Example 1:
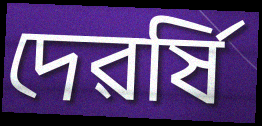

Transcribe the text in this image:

দেৱৰ্ষি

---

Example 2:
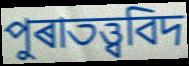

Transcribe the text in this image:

পুৰাতত্ত্ববিদ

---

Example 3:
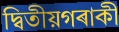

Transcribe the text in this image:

দ্বিতীয়গৰাকী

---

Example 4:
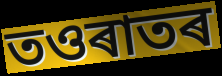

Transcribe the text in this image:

তওৰাতৰ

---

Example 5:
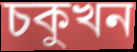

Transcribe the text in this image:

চকুখন